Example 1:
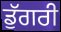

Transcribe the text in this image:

ਡੁੱਗਰੀ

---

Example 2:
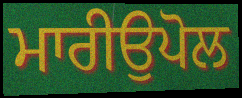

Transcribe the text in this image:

ਮਾਰੀਉਪੋਲ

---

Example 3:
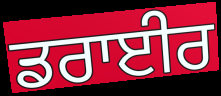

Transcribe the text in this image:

ਡਰਾਈਰ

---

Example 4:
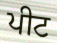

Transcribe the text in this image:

ਪੀਟ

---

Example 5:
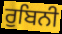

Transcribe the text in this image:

ਰੁਬਿਨੀ